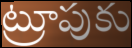
ట్రూపుకు